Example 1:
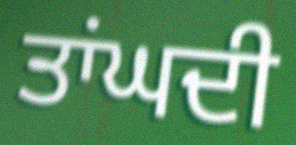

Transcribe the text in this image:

ਤਾਂਘਦੀ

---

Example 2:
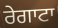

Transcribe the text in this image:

ਰੇਗਾਟਾ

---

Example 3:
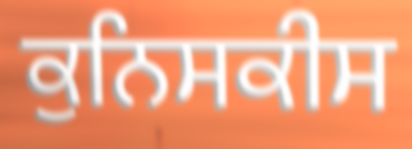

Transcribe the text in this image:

ਕੁਨਿਸਕੀਸ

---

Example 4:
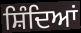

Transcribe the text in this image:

ਸ਼ਿੰਦਿਆਂ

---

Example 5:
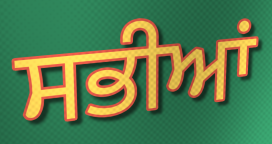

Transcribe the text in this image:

ਸਭੀਆਂ